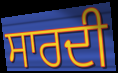
ਸਾਰਦੀ